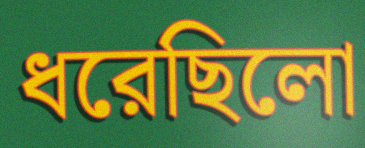
ধরেছিলো